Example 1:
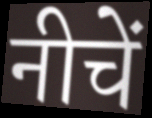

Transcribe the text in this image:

नीचें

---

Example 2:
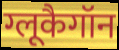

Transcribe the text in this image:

ग्लूकैगॉन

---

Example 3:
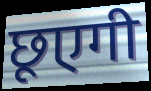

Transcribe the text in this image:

छूएगी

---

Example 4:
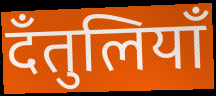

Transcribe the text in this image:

दँतुलियाँ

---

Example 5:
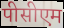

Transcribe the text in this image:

पीसीएम